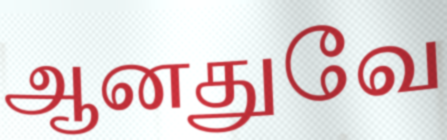
ஆனதுவே